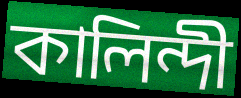
কালিন্দী